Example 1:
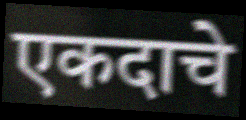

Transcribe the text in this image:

एकदाचे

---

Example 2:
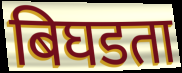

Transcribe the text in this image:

बिघडता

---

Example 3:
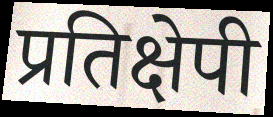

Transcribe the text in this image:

प्रतिक्षेपी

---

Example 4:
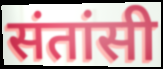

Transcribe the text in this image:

संतांसी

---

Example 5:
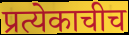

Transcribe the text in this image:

प्रत्येकाचीच